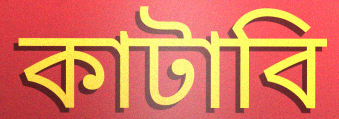
কাটাবি